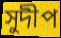
সুদীপ